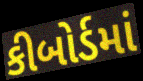
કીબોર્ડમાં